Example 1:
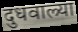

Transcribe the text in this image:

दुधवाल्या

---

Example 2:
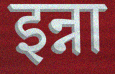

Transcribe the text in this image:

इन्ना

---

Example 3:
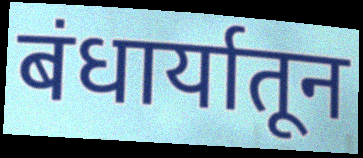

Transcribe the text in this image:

बंधार्यातून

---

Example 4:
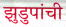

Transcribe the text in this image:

झुडुपांची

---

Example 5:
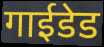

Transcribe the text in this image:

गाईडेड